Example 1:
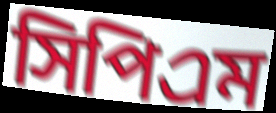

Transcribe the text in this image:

সিপিএম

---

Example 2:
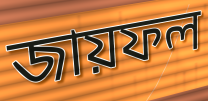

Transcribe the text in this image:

জায়ফল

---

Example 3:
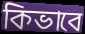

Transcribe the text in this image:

কিভাবে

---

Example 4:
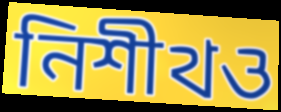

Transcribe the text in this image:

নিশীথও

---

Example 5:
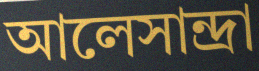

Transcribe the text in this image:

আলেসান্দ্রা